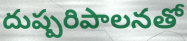
దుష్పరిపాలనతో